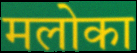
मलोका